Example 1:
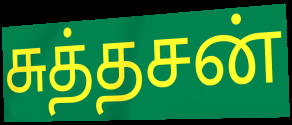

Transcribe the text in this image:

சுத்தசன்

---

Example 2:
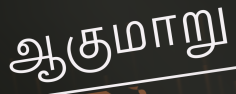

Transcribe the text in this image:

ஆகுமாறு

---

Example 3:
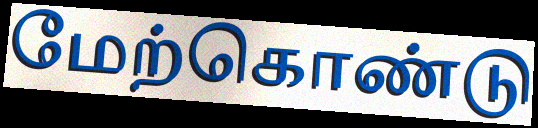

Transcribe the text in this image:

மேற்கொண்டு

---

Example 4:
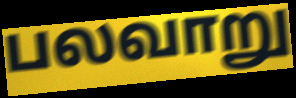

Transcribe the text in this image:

பலவாறு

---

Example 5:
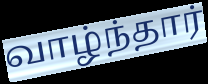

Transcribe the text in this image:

வாழ்ந்தார்